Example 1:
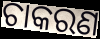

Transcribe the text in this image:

ଚାକରଣ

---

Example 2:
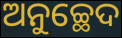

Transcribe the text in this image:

ଅନୁଚ୍ଛେଦ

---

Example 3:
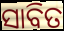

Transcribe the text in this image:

ସାବିତ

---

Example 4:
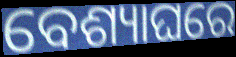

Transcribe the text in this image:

ବେଶ୍ୟାଘରେ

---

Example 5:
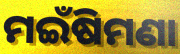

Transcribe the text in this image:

ମଇଁଷିମଣା